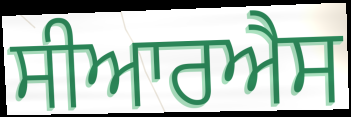
ਸੀਆਰਐਸ